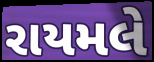
રાયમલે